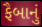
ફૈબાનું